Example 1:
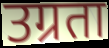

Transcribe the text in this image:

उग्रता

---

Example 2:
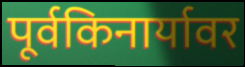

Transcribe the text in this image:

पूर्वकिनार्यावर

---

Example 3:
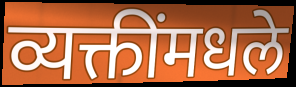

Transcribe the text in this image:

व्यक्तींमधले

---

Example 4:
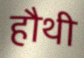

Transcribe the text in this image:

हौथी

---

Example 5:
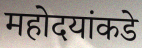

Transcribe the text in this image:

महोदयांकडे